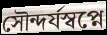
সৌন্দর্যস্বপ্নে